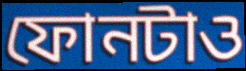
ফোনটাও